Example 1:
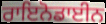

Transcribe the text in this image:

ਰਾਇਨੋਡਾਈਨ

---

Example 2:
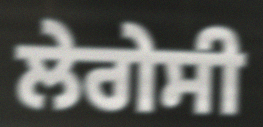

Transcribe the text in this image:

ਲੇਗੇਸੀ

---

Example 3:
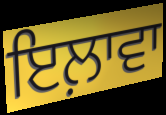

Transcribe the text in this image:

ਇਲ਼ਾਵਾ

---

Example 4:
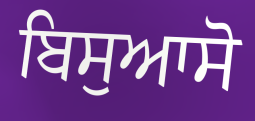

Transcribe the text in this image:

ਬਿਸੁਆਸੋ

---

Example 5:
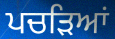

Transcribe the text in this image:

ਪਚੜਿਆਂ